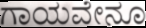
ಗಾಯವೇನೂ